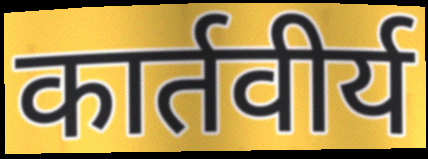
कार्तवीर्य